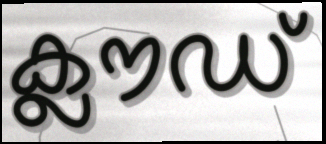
ക്ലൗഡ്